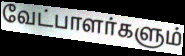
வேட்பாளர்களும்